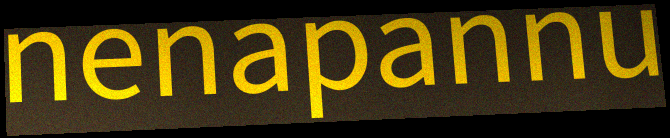
nenapannu